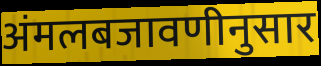
अंमलबजावणीनुसार